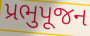
પ્રભુપૂજન